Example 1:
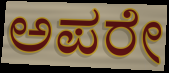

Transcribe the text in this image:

ಅಪರೇ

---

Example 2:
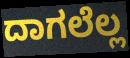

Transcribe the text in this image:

ದಾಗಲೆಲ್ಲ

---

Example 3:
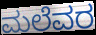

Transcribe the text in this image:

ಮಲೆವರ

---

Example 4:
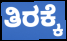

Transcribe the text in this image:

ತಿರಕ್ಕೆ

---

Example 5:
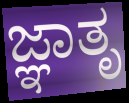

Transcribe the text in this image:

ಜ್ಞಾತೃ